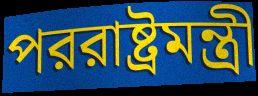
পররাষ্ট্রমন্ত্রী